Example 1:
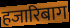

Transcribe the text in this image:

हजारिबाग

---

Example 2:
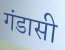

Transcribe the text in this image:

गंडासी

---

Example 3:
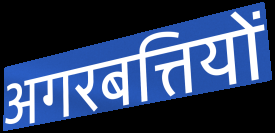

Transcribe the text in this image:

अगरबत्तियों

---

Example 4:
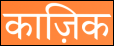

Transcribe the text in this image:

काज़िक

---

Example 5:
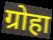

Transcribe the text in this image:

ग्रोहा